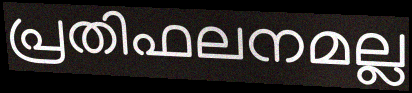
പ്രതിഫലനമല്ല